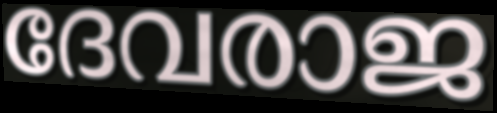
ദേവരാജ